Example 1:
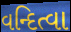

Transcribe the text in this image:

વન્દિત્વા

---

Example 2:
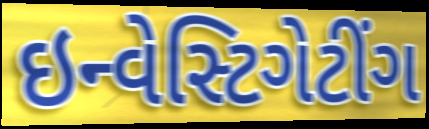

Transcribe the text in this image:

ઇન્વેસ્ટિગેટીંગ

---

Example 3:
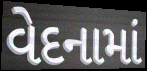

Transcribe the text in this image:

વેદનામાં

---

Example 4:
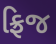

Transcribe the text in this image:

ફ્રિજ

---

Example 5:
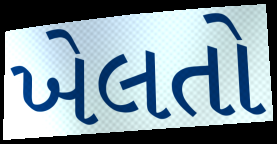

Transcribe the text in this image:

ખેલતો